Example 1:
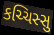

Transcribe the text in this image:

કચ્ચિસ્સુ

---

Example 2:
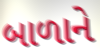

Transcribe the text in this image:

બાળાને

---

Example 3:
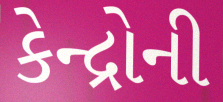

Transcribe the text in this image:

કેન્દ્રોની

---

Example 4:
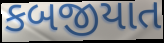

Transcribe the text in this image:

કબજીયાત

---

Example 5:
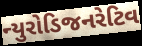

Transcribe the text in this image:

ન્યુરોડિજનરેટિવ